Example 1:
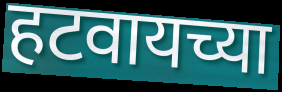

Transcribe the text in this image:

हटवायच्या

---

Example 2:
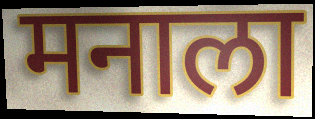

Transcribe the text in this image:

मनाला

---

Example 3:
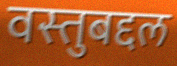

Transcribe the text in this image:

वस्तुबद्दल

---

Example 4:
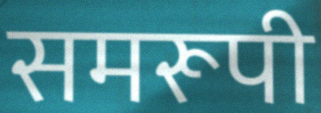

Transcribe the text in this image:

समरूपी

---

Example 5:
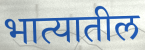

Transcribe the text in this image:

भात्यातील